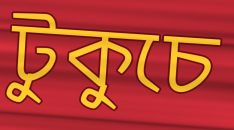
টুকুচে